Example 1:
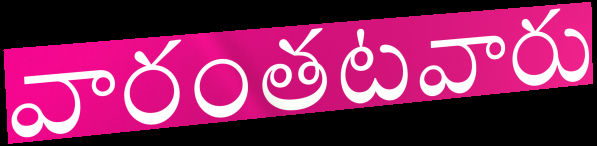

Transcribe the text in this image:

వారంతటవారు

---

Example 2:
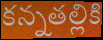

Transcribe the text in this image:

కన్నతల్లికి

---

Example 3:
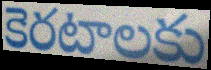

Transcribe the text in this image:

కెరటాలకు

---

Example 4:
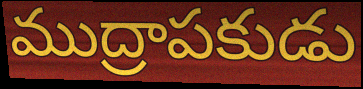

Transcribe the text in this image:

ముద్రాపకుడు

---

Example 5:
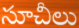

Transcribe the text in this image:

సూచీలు